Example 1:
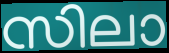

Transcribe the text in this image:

സിലാ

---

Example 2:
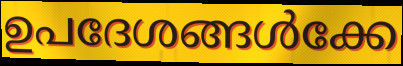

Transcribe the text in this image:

ഉപദേശങ്ങൾക്കേ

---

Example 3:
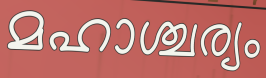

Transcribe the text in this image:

മഹാശ്ചര്യം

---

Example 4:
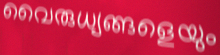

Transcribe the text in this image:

വൈരുധ്യങ്ങളെയും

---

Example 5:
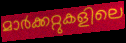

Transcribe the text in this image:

മാർക്കറ്റുകളിലെ